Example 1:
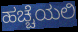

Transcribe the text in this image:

ಹಚ್ಚೆಯಲಿ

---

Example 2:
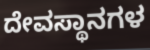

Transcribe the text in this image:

ದೇವಸ್ಥಾನಗಳ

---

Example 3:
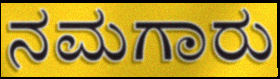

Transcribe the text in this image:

ನಮಗಾರು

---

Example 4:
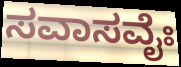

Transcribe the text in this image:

ಸವಾಸವೈಃ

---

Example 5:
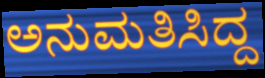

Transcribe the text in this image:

ಅನುಮತಿಸಿದ್ದ